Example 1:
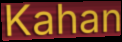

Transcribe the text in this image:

Kahan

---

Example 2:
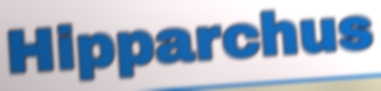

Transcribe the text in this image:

Hipparchus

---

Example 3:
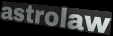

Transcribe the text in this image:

astrolaw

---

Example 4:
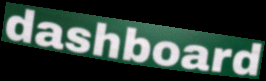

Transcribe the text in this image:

dashboard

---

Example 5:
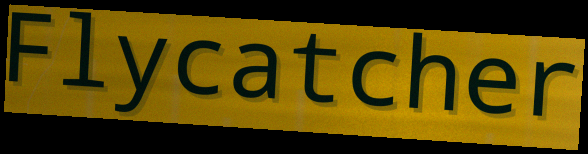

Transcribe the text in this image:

Flycatcher